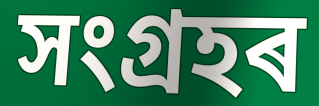
সংগ্ৰহৰ